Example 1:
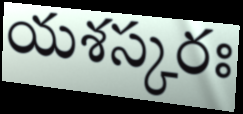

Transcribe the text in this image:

యశస్కరః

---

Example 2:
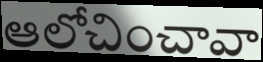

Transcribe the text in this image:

ఆలోచించావా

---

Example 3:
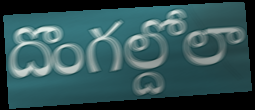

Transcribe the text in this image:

దొంగల్దోలా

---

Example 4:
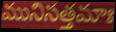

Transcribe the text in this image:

మునిసత్తమాః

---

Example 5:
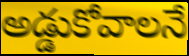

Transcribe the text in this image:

అడ్డుకోవాలనే